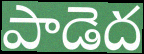
పాడెద